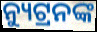
ନ୍ୟୁଟ୍ରନଙ୍କ